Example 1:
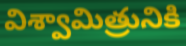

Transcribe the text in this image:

విశ్వామిత్రునికి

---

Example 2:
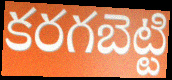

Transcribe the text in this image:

కరగబెట్టి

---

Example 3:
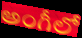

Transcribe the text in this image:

అంగీలో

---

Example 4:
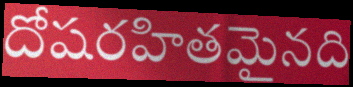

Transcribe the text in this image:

దోషరహితమైనది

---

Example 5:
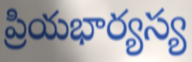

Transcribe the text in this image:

ప్రియభార్యస్య